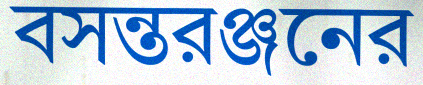
বসন্তরঞ্জনের